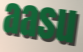
aasu